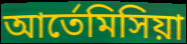
আর্তেমিসিয়া